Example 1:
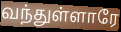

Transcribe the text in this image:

வந்துள்ளாரே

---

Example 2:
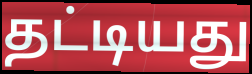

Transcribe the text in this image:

தட்டியது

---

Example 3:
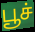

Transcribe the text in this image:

பூச்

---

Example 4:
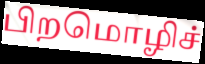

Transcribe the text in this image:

பிறமொழிச்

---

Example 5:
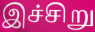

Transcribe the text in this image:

இச்சிறு